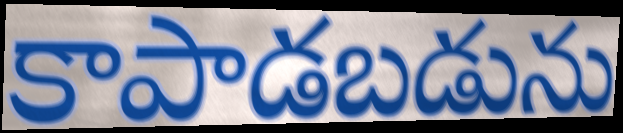
కాపాడబడును